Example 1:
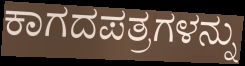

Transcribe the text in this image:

ಕಾಗದಪತ್ರಗಳನ್ನು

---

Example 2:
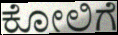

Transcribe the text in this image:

ಕೋಲಿಗೆ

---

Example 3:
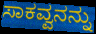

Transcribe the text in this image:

ಸಾಕವ್ವನನ್ನು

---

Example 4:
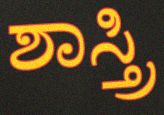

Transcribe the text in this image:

ಶಾಸ್ತ್ರಿ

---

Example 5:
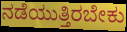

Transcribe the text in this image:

ನಡೆಯುತ್ತಿರಬೇಕು